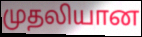
முதலியான